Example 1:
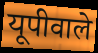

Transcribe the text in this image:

यूपीवाले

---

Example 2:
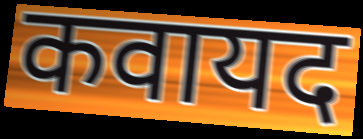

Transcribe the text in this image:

कवायद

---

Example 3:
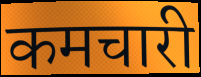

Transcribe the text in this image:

कमचारी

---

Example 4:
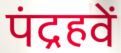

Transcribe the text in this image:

पंद्रहवें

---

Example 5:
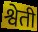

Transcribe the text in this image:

श्वेती